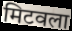
मिटवला